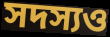
সদস্যও